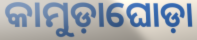
କାମୁଡ଼ାଘୋଡ଼ା